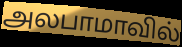
அலபாமாவில்